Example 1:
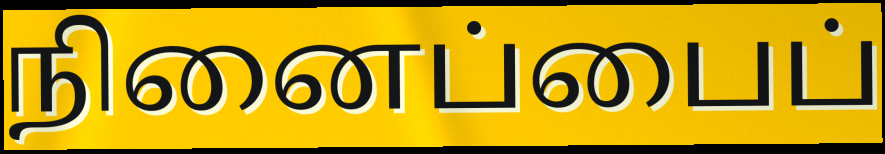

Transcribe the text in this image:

நினைப்பைப்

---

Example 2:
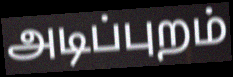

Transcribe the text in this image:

அடிப்புறம்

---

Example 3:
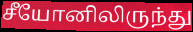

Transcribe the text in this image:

சீயோனிலிருந்து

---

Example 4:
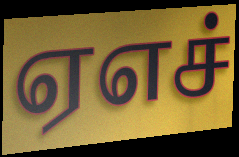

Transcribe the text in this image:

ஏஎச்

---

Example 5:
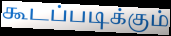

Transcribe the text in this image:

கூடப்படிக்கும்